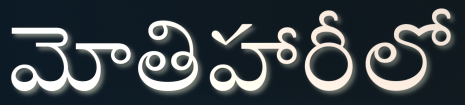
మోతిహారీలో